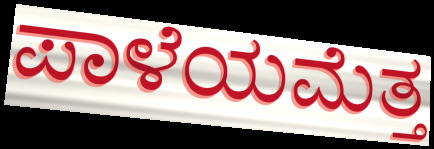
ಪಾಳೆಯಮೆತ್ತ